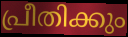
പ്രീതിക്കും